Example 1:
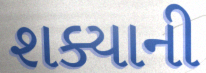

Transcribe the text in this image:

શક્યાની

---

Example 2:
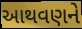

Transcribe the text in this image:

આથવણને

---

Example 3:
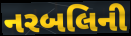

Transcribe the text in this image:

નરબલિની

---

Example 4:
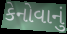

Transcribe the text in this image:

કેનોવાનું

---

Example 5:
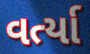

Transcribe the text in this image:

વર્ત્યા